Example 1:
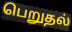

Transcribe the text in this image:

பெறுதல்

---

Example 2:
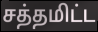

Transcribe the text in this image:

சத்தமிட்ட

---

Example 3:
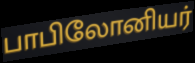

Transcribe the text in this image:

பாபிலோனியர்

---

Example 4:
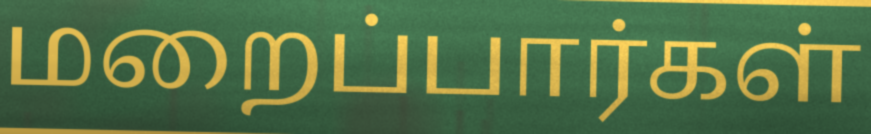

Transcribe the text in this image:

மறைப்பார்கள்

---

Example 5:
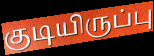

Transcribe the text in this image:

குடியிருப்பு